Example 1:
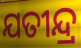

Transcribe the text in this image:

ଯତୀନ୍ଦ୍ର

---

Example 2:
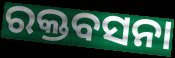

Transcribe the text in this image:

ରକ୍ତବସନା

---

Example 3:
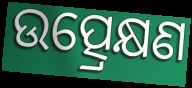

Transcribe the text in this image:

ଉତ୍ପ୍ରେକ୍ଷଣ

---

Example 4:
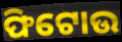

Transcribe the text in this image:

ଫିଟୋଉ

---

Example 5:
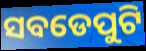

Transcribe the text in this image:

ସବଡେପୁଟି